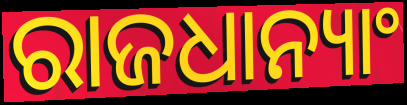
ରାଜଧାନ୍ୟାଂ